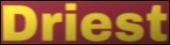
Driest